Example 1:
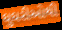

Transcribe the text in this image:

ઘુઘરીઓથી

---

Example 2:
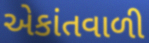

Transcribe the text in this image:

એકાંતવાળી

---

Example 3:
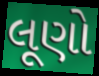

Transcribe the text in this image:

લૂણો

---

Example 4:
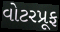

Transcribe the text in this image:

વોટરપ્રૂફ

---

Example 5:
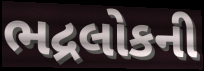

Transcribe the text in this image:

ભદ્રલોકની